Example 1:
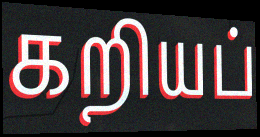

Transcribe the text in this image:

கறியப்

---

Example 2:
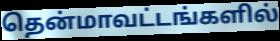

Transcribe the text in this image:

தென்மாவட்டங்களில்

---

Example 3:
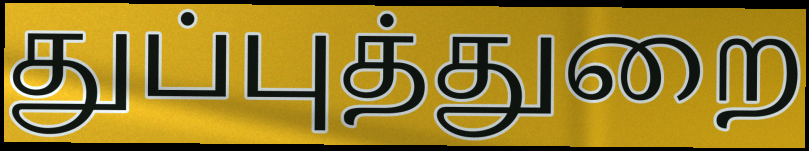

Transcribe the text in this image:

துப்புத்துறை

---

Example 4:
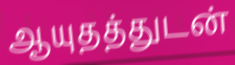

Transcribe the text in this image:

ஆயுதத்துடன்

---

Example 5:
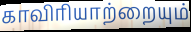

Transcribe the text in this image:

காவிரியாற்றையும்